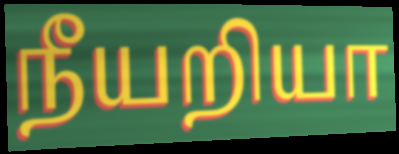
நீயறியா